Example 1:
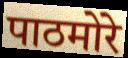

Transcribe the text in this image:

पाठमोरे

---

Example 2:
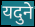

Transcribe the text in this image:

यदुने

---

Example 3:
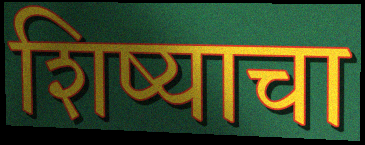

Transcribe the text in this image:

शिष्याचा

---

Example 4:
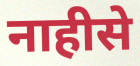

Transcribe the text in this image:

नाहीसे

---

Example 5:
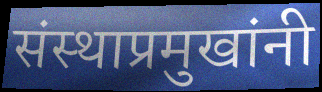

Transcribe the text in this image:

संस्थाप्रमुखांनी